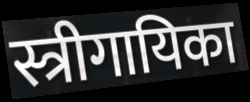
स्त्रीगायिका